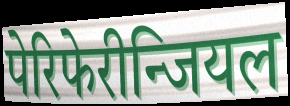
पेरिफेरीन्जियल